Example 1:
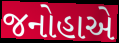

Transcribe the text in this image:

જનોહાએ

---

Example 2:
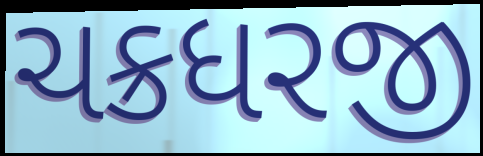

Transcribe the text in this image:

ચક્રધરજી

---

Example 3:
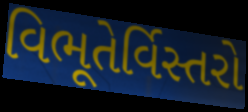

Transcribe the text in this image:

વિભૂતેર્વિસ્તરો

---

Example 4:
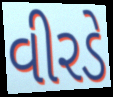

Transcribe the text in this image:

વીરડે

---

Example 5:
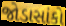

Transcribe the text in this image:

જોડાસાંકો